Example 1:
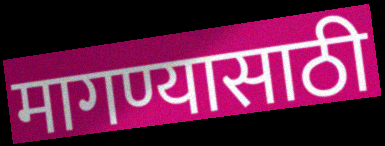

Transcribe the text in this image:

मागण्यासाठी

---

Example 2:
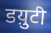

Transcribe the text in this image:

डय़ुटी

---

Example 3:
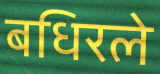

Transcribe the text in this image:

बधिरले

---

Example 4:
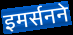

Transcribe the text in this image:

इमर्सनने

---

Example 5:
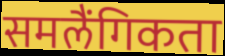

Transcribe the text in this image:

समलैंगिकता